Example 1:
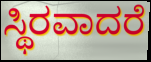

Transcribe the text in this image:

ಸ್ಥಿರವಾದರೆ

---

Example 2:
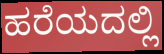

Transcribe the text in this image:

ಹರೆಯದಲ್ಲಿ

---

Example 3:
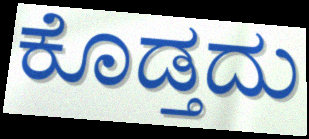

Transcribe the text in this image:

ಕೊಡ್ತದು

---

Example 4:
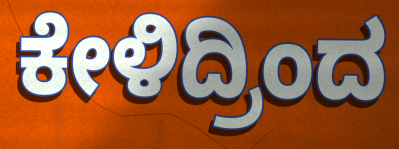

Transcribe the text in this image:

ಕೇಳಿದ್ರಿಂದ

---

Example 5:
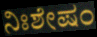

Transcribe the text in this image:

ನಿಃಶೇಷಂ